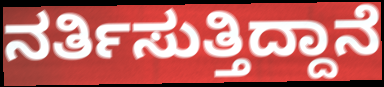
ನರ್ತಿಸುತ್ತಿದ್ದಾನೆ